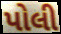
પોલી